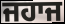
ਜਹਾਜ